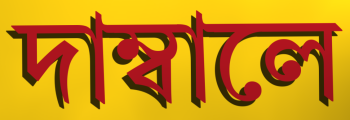
দাম্বালে